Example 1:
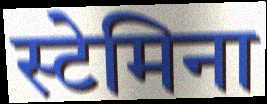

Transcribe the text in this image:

स्टेमिना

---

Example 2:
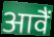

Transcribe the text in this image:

आवैं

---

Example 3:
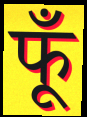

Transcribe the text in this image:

फूँ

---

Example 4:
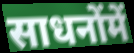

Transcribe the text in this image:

साधनोंमें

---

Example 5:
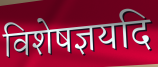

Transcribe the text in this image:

विशेषज्ञयदि